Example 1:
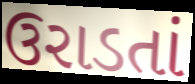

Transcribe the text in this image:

ઉરાડતાં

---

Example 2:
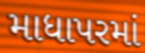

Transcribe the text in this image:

માધાપરમાં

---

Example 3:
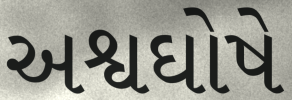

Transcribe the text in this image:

અશ્વઘોષે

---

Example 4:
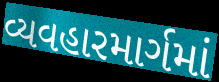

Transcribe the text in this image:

વ્યવહારમાર્ગમાં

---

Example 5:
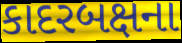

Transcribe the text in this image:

કાદરબક્ષના